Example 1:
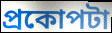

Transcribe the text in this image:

প্রকোপটা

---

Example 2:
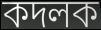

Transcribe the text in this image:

কদলক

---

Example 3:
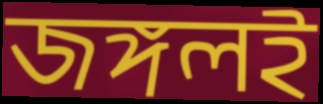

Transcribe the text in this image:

জঙ্গলই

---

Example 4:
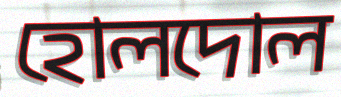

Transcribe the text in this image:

হোলদোল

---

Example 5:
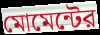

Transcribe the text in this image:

মোমেন্টের